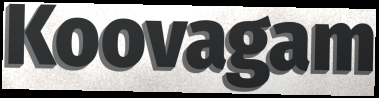
Koovagam